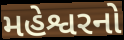
મહેશ્વરનો